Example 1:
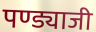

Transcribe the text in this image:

पण्ड्याजी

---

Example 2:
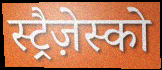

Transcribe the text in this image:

स्ट्रैज़ेस्को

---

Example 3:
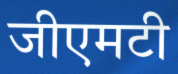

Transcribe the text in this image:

जीएमटी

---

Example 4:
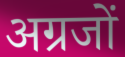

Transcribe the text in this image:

अग्रजों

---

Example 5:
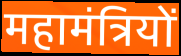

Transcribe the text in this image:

महामंत्रियों